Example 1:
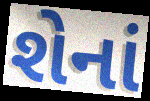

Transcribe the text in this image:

શેનાં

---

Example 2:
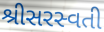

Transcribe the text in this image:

શ્રીસરસ્વતી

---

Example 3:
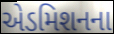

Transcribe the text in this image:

એડમિશનના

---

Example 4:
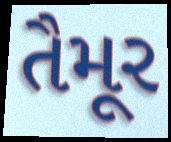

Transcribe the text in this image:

તૈમૂર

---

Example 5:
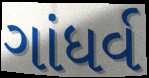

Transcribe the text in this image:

ગાંધર્વ